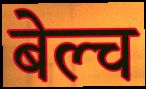
बेल्च